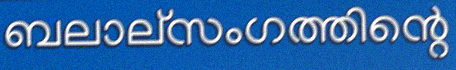
ബലാല്സംഗത്തിന്റെ